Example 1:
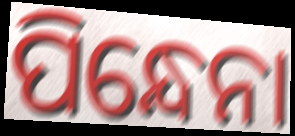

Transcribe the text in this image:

ପିନ୍ଧେନା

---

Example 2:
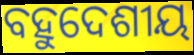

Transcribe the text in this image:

ବହୁଦେଶୀୟ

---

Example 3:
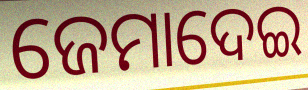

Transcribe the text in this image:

ଜେମାଦେଇ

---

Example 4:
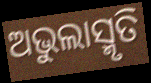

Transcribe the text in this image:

ଅଭୁଲାସ୍ମୃତି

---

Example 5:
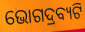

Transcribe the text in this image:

ଭୋଗଦ୍ରବ୍ୟଟି